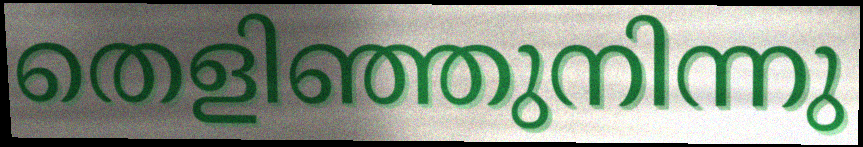
തെളിഞ്ഞുനിന്നു